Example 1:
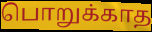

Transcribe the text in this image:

பொறுக்காத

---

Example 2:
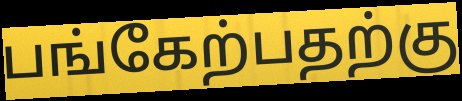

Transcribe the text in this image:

பங்கேற்பதற்கு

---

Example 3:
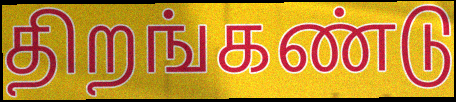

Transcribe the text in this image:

திறங்கண்டு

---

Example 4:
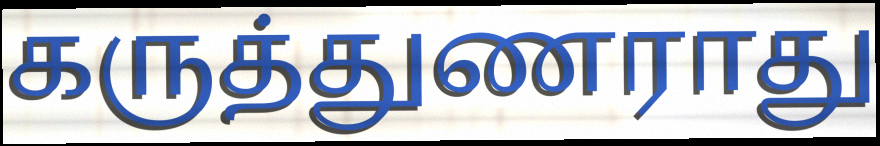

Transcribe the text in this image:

கருத்துணராது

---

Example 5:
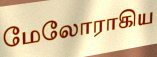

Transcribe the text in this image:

மேலோராகிய